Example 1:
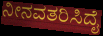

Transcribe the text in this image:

ನೀನವತರಿಸಿದೈ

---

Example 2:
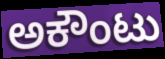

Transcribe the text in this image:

ಅಕೌಂಟು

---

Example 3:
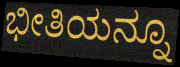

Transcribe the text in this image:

ಭೀತಿಯನ್ನೂ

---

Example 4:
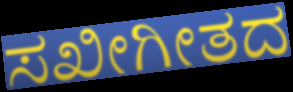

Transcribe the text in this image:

ಸಖೀಗೀತದ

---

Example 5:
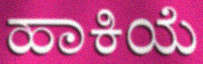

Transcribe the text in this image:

ಹಾಕಿಯೆ